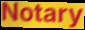
Notary